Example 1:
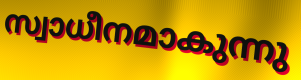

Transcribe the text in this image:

സ്വാധീനമാകുന്നു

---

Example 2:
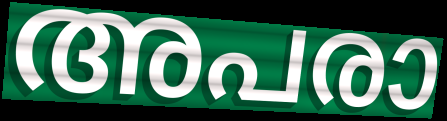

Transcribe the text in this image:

അപരാ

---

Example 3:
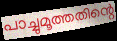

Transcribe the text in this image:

പാച്ചുമൂത്തതിന്റെ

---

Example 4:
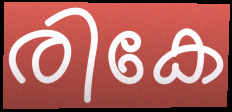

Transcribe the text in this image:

രികേ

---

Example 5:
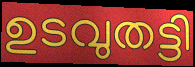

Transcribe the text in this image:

ഉടവുതട്ടി